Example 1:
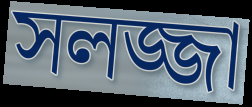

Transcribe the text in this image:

সলজ্জা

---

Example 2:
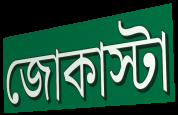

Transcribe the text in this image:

জোকাস্টা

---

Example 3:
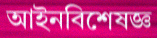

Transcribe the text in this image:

আইনবিশেষজ্ঞ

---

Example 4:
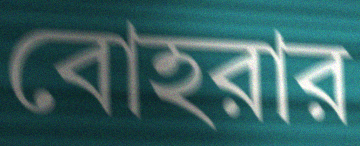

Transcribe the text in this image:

বোহরার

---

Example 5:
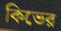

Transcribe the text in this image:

কিভের